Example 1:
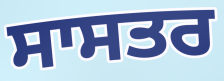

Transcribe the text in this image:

ਸਾਸਤਰ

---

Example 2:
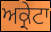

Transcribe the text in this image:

ਅਕ੍ਰੇਟਾ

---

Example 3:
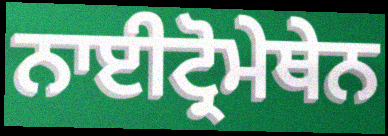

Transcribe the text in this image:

ਨਾਈਟ੍ਰੋਮੇਥੇਨ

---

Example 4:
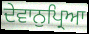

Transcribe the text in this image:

ਦੇਵਾਨੁਪ੍ਰਿਆ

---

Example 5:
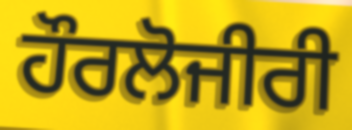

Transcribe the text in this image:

ਹੌਰਲੋਜੀਰੀ